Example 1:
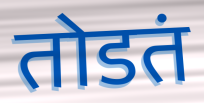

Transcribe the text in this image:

तोडतं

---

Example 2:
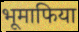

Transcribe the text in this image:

भूमाफिया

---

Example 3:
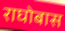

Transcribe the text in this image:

राघोबास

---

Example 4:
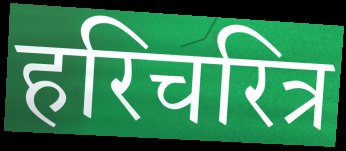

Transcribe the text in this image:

हरिचरित्र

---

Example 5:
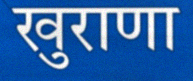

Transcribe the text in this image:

खुराणा